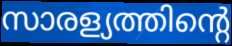
സാരള്യത്തിന്റെ